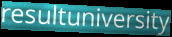
resultuniversity